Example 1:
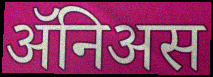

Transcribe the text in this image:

ॲनिअस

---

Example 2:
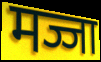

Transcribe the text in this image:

मज्जा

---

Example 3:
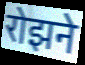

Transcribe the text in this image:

रोझने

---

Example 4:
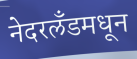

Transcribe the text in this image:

नेदरलँडमधून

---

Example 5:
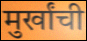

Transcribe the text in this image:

मुर्खांची